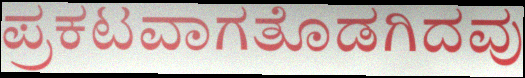
ಪ್ರಕಟವಾಗತೊಡಗಿದವು